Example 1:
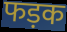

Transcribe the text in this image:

फड़क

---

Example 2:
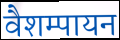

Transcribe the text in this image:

वैशम्पायन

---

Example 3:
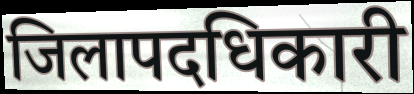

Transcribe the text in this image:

जिलापदधिकारी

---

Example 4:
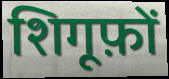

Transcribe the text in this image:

शिगूफ़ों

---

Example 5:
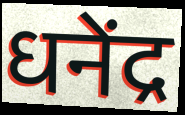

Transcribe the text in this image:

धनेंद्र